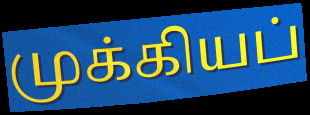
முக்கியப்